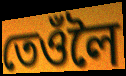
তেওঁলৈ